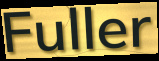
Fuller